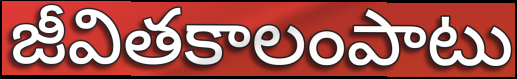
జీవితకాలంపాటు